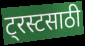
ट्रस्टसाठी